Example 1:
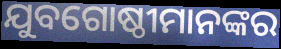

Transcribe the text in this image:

ଯୁବଗୋଷ୍ଠୀମାନଙ୍କର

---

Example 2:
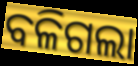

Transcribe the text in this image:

ବଳିଗଲା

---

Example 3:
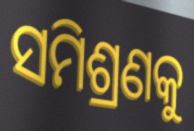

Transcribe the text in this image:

ସମିଶ୍ରଣକୁ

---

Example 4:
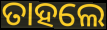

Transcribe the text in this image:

ତାହଲେ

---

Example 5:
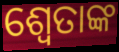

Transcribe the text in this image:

ଶ୍ୱେତାଙ୍କ